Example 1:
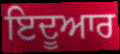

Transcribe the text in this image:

ਇਦੂਆਰ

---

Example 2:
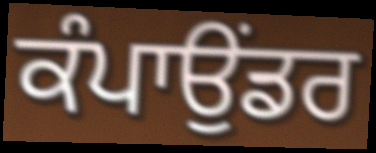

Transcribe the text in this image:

ਕੰਪਾਉਂਡਰ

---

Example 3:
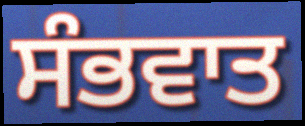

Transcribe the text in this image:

ਸੰਭਵਾਤ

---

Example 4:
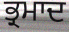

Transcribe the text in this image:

ਭ੍ਰਮਾਦ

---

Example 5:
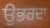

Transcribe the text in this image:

ਉਭਰਦਾ